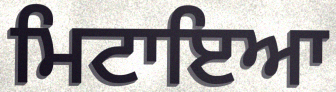
ਮਿਟਾਇਆ